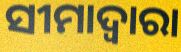
ସୀମାଦ୍ଵାରା